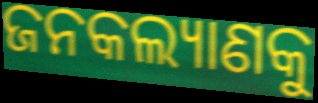
ଜନକଲ୍ୟାଣକୁ